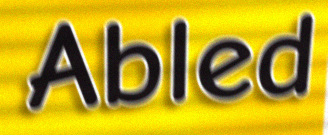
Abled